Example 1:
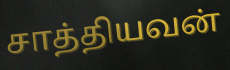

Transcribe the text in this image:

சாத்தியவன்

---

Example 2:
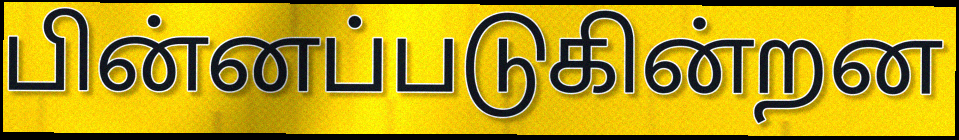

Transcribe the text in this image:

பின்னப்படுகின்றன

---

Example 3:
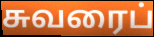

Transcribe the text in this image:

சுவரைப்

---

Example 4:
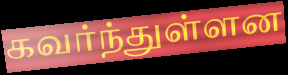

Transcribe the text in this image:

கவர்ந்துள்ளன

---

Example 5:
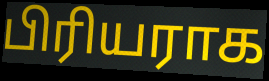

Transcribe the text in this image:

பிரியராக